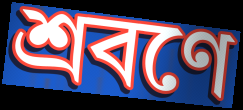
শ্রবণে